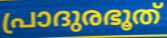
പ്രാദുരഭൂത്